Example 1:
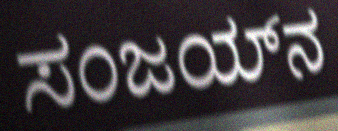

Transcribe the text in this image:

ಸಂಜಯ್‌ನ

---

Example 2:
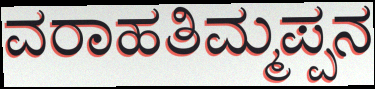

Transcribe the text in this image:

ವರಾಹತಿಮ್ಮಪ್ಪನ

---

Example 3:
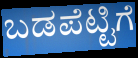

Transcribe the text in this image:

ಬಡಪೆಟ್ಟಿಗೆ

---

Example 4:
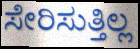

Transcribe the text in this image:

ಸೇರಿಸುತ್ತಿಲ್ಲ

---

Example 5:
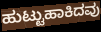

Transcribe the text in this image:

ಹುಟ್ಟುಹಾಕಿದವು